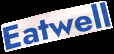
Eatwell